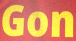
Gon